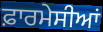
ਫ਼ਾਰਮੇਸੀਆਂ